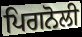
ਪਿਗਨੋਲੀ